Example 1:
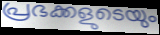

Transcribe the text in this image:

പ്രഭക്കളുടെയും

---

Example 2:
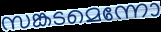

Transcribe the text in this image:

സങ്കടമെന്നോ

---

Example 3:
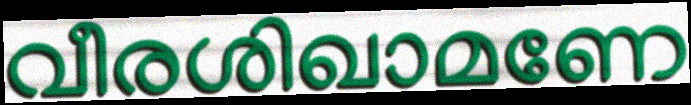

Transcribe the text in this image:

വീരശിഖാമണേ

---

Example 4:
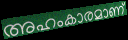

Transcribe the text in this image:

അഹംകാരമാണ്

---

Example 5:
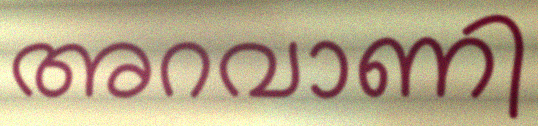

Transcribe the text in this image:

അറവാണി